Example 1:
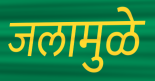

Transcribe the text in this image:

जलामुळे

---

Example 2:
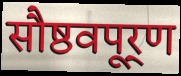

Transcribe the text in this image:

सौष्ठवपूर्ण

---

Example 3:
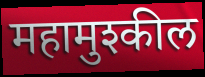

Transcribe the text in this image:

महामुश्कील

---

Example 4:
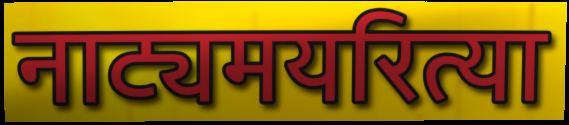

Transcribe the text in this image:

नाट्यमयरित्या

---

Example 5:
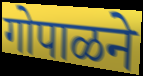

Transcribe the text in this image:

गोपाळने